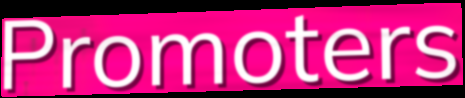
Promoters